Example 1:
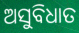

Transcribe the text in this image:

ଅସୁବିଧାତ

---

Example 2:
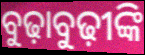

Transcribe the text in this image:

ବୁଢ଼ାବୁଢ଼ୀଙ୍କି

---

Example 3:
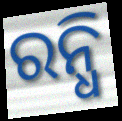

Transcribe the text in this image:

ରନ୍ଧି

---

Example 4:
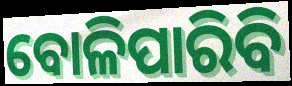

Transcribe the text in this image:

ବୋଳିପାରିବି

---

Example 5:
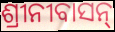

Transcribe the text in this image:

ଶ୍ରୀନୀବାସନ୍